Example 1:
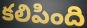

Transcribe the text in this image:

కలిపింది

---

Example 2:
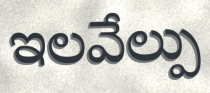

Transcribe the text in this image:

ఇలవేల్పు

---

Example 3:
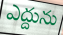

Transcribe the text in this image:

ఎద్దును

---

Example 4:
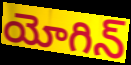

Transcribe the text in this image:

యోగిన్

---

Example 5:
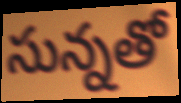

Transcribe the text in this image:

సున్నతో